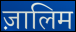
ज़ालिम